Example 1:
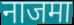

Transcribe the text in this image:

नाजमा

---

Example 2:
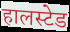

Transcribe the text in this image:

हालस्टेड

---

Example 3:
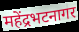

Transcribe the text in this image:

महेंद्रभटनागर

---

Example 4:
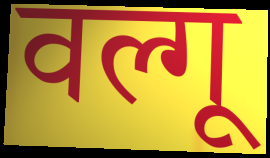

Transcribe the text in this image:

वल्गू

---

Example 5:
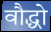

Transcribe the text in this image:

वौद्धो